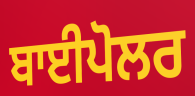
ਬਾਈਪੋਲਰ